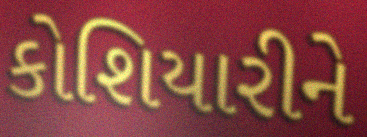
કોશિયારીને